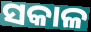
ସକାଳ